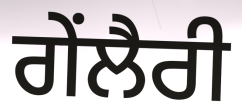
ਗੇਂਲੈਰੀ